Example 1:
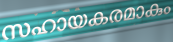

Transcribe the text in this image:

സഹായകരമാകും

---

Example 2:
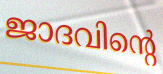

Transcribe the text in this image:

ജാദവിന്റെ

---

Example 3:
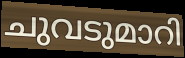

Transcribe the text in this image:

ചുവടുമാറി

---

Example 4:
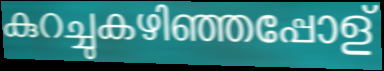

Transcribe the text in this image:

കുറച്ചുകഴിഞ്ഞപ്പോള്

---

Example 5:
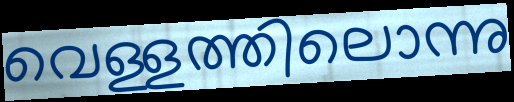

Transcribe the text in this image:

വെള്ളത്തിലൊന്നു